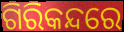
ଗିରିକନ୍ଦରେ